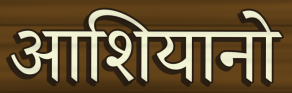
आशियानो